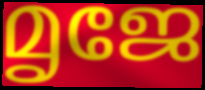
മൃജേ